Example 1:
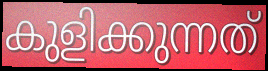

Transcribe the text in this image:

കുളിക്കുന്നത്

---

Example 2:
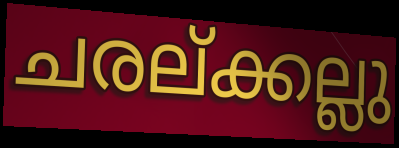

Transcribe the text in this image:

ചരല്ക്കല്ലു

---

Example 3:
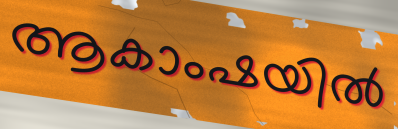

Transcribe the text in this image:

ആകാംഷയിൽ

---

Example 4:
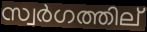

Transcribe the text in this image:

സ്വർഗത്തില്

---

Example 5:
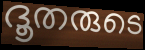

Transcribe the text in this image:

ദൂതരുടെ